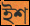
ইশ